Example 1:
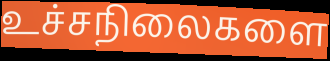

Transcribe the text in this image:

உச்சநிலைகளை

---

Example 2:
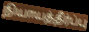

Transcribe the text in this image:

நியாயத்தீர்ப்பு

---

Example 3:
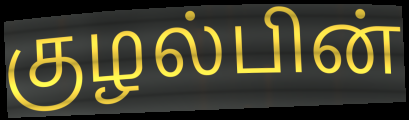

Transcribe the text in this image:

குழல்பின்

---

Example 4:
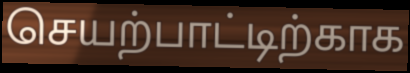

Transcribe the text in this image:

செயற்பாட்டிற்காக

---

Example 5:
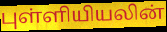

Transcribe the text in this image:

புள்ளியியலின்